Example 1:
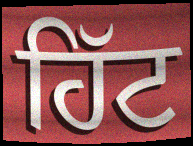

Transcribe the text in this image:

ਹਿੱਟ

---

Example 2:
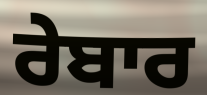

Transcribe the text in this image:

ਰੇਬਾਰ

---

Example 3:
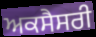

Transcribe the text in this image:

ਅਕਸੈਸਰੀ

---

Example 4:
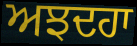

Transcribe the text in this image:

ਅਝਦਹਾ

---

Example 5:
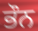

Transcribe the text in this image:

ਭੌਨ